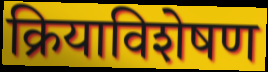
क्रियाविशेषण